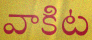
వాకిట